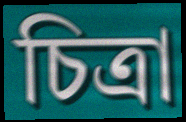
চিত্রা